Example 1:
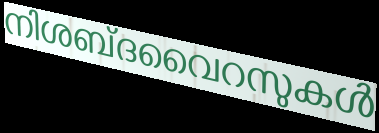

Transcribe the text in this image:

നിശബ്‌ദവൈറസുകൾ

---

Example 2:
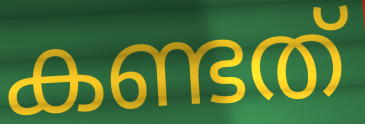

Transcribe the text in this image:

കണ്ടത്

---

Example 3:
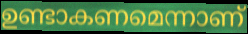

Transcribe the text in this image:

ഉണ്ടാകണമെന്നാണ്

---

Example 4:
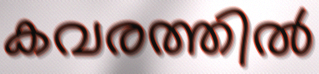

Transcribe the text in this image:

കവരത്തിൽ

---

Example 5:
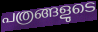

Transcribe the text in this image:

പത്രങ്ങളുടെ